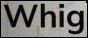
Whig